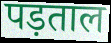
पड़ताल